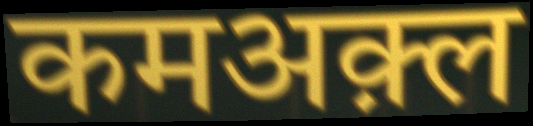
कमअक़्ल